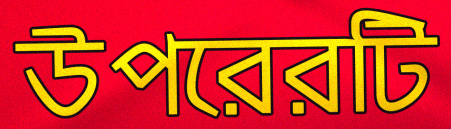
উপরেরটি